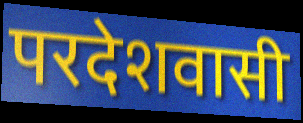
परदेशवासी